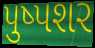
પુષ્પશર